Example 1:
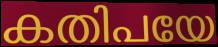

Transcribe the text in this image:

കതിപയേ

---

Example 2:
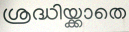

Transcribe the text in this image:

ശ്രദ്ധിയ്ക്കാതെ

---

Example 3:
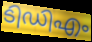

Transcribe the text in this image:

ടിഡിഎം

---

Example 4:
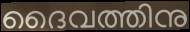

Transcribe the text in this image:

ദൈവത്തിനു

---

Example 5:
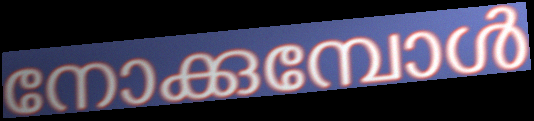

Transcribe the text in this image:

നോക്കുമ്പോൾ